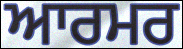
ਆਰਮਰ